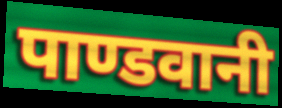
पाण्डवानी